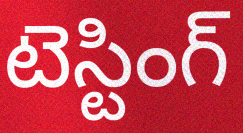
టెస్టింగ్